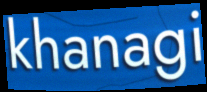
khanagi